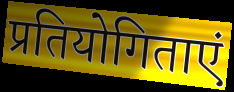
प्रतियोगिताएं